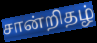
சான்றிதழ்